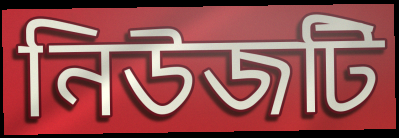
নিউজটি